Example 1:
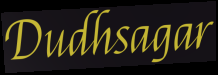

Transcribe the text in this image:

Dudhsagar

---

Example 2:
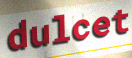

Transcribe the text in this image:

dulcet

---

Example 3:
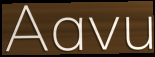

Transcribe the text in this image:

Aavu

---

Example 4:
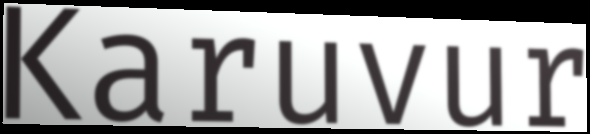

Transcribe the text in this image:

Karuvur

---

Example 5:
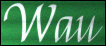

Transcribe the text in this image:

Wau